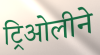
ट्रिओलीने